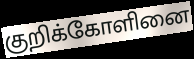
குறிக்கோளினை